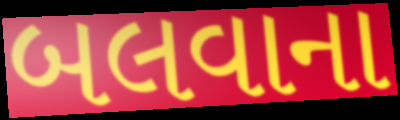
બલવાના